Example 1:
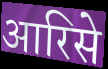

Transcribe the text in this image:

आरिसे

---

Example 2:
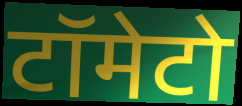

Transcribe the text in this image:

टॉमेटो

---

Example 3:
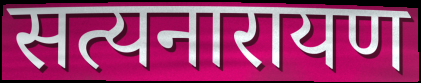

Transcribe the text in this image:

सत्यनारायण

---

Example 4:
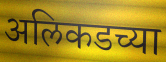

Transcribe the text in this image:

अलिकडच्या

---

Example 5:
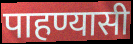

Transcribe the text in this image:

पाहण्यासी